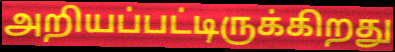
அறியப்பட்டிருக்கிறது